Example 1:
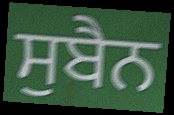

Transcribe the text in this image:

ਸੁਬੈਨ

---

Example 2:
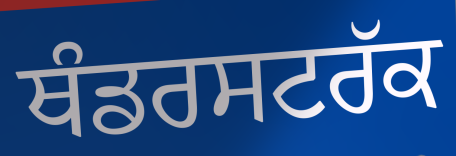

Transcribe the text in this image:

ਥੰਡਰਸਟਰੱਕ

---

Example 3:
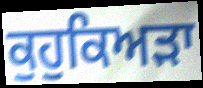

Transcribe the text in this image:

ਕੁਹੁਕਿਅੜਾ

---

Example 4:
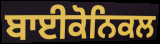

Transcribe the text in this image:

ਬਾਈਕੋਨਿਕਲ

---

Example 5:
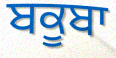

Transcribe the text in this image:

ਬਕੂਬਾ